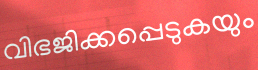
വിഭജിക്കപ്പെടുകയും